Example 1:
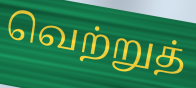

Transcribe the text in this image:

வெற்றுத்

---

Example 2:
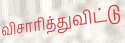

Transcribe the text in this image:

விசாரித்துவிட்டு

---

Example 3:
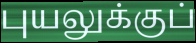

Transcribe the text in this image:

புயலுக்குப்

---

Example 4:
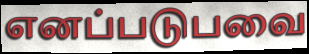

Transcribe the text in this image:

எனப்படுபவை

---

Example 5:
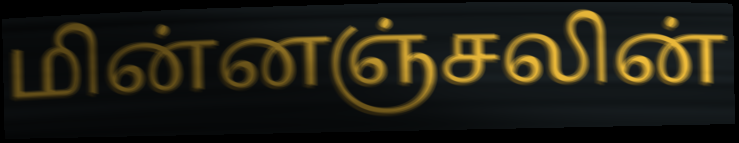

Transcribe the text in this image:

மின்னஞ்சலின்